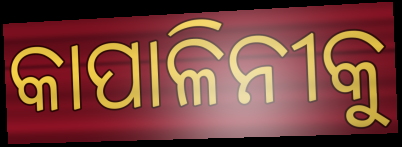
କାପାଳିନୀକୁ